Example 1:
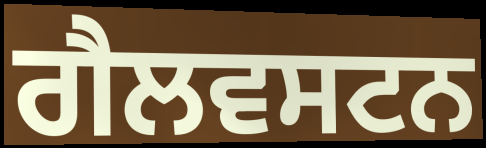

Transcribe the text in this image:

ਗੈਲਵਸਟਨ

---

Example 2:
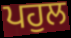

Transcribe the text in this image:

ਪਹੁਲ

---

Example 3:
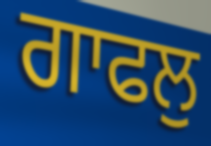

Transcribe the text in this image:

ਗਾਫਲੁ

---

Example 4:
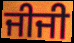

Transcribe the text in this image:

ਜੀਜੀ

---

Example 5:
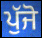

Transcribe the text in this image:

ਪੁੱਜੋ